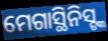
ମେଗାସ୍ଥିନିସ୍ଙ୍କ